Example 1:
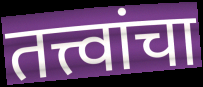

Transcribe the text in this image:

तत्त्वांचा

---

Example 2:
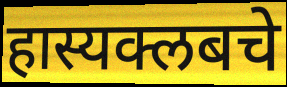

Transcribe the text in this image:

हास्यक्लबचे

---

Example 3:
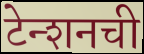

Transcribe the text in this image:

टेन्शनची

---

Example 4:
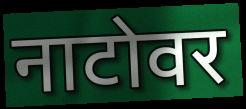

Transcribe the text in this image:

नाटोवर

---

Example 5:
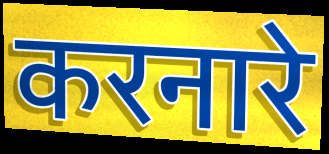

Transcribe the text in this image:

करनारे